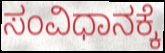
ಸಂವಿಧಾನಕ್ಕೆ